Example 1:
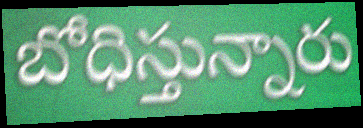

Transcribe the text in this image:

బోధిస్తున్నారు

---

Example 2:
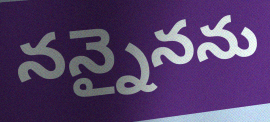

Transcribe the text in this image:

నన్నైనను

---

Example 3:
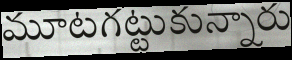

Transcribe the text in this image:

మూటగట్టుకున్నారు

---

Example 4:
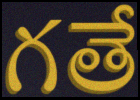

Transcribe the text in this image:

గతే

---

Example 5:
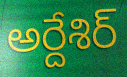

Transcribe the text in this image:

అర్దేశిర్